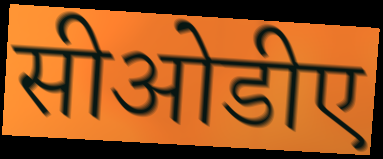
सीओडीए